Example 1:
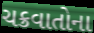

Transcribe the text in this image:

ચક્રવાતોના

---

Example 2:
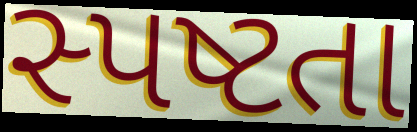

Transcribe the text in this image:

સ્પષ્ટતા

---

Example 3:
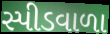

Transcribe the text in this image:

સ્પીડવાળા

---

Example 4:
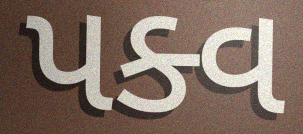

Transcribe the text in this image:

પક્વ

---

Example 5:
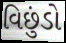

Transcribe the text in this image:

વિછુંડો